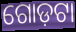
ଗୋଡ଼ଟା